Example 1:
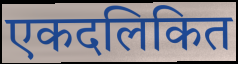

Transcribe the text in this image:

एकदलिकित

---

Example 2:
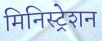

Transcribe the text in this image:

मिनिस्ट्रेशन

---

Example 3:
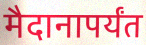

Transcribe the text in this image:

मैदानापर्यंत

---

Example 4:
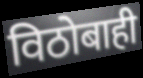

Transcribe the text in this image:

विठोबाही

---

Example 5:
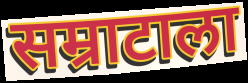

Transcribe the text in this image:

सम्राटाला